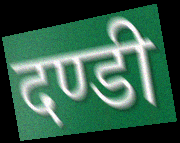
दण्डी